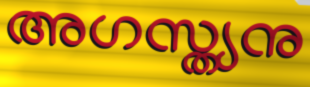
അഗസ്ത്യനു